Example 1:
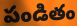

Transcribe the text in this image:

పండితం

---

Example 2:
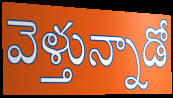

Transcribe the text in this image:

వెళ్తున్నాడో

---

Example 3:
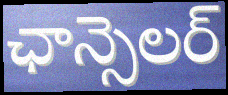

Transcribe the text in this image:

ఛాన్సెలర్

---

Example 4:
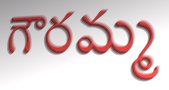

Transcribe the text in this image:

గౌరమ్మ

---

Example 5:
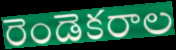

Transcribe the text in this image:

రెండెకరాల